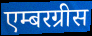
एम्बरग्रीस